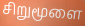
சிறுமூளை